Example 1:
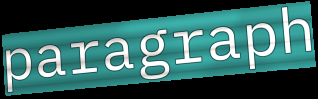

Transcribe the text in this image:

paragraph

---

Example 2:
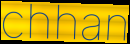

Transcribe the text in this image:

chhan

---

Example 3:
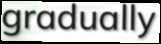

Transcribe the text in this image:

gradually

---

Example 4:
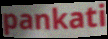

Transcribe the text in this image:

pankati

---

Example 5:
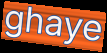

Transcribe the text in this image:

ghaye